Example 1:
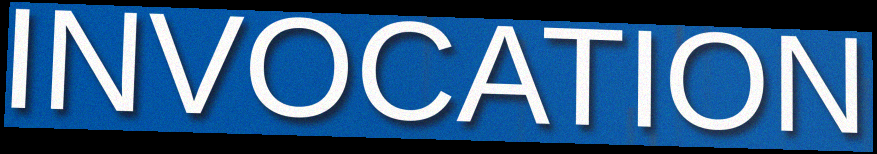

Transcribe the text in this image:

INVOCATION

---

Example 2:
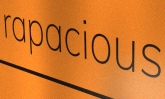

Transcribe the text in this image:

rapacious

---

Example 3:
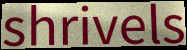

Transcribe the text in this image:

shrivels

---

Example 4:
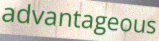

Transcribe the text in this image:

advantageous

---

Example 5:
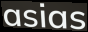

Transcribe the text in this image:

asias